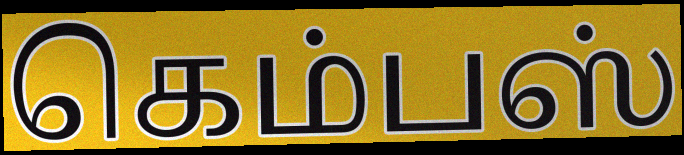
கெம்பஸ்